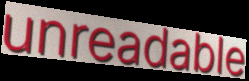
unreadable